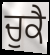
ਚੁਕੈ